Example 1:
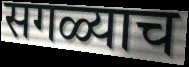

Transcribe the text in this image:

सगळ्याच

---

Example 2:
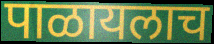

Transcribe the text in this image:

पाळायलाच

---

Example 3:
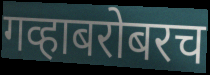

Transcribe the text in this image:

गव्हाबरोबरच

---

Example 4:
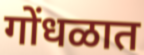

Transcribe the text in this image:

गोंधळात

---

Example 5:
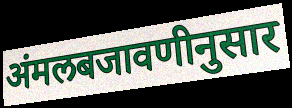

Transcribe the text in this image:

अंमलबजावणीनुसार